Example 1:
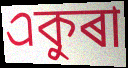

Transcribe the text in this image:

একুৰা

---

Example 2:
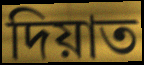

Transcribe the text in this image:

দিয়াত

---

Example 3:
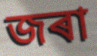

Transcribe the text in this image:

জৰা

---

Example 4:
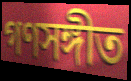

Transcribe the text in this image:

গণসঙ্গীত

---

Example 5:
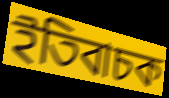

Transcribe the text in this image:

ইতিবাচক